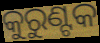
କୁରୁଣ୍ଟକ